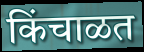
किंचाळत